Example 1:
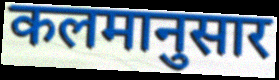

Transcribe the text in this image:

कलमानुसार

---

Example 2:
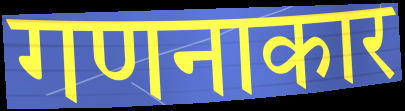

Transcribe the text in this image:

गणनाकार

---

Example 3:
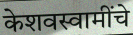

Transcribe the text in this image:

केशवस्वामींचे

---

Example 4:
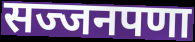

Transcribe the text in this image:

सज्जनपणा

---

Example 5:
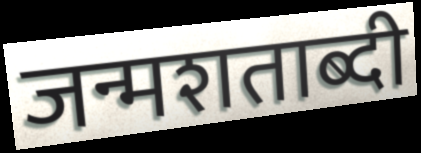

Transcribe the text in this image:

जन्मशताब्दी